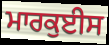
ਮਾਰਕੁਈਸ